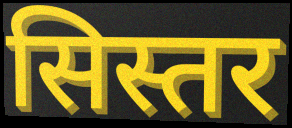
सिस्तर